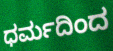
ಧರ್ಮದಿಂದ